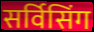
सर्विसिंग